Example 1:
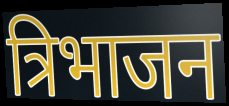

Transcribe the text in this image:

त्रिभाजन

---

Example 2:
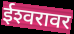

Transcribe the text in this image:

ईश्‍वरावर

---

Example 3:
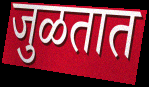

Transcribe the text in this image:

जुळतात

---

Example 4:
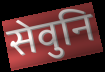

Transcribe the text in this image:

सेवुनि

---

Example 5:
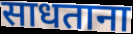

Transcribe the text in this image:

साधताना